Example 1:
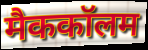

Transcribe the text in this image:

मैककॉलम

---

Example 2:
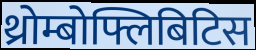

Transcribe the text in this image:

थ्रोम्बोफ्लिबिटिस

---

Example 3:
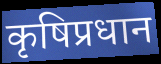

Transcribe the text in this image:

कृषिप्रधान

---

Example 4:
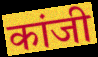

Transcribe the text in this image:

कांजी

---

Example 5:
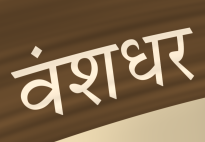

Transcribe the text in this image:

वंशधर